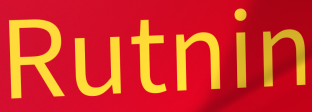
Rutnin